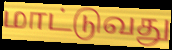
மாட்டுவது